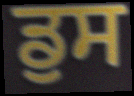
ਡੁਸ